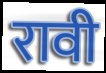
रावी